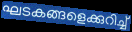
ഘടകങ്ങളെക്കുറിച്ച്